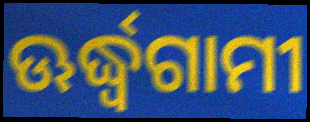
ଊର୍ଦ୍ଧ୍ୱଗାମୀ